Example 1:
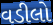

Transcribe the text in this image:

વડીલો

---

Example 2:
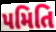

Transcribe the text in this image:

પમિતિ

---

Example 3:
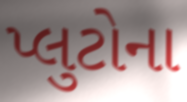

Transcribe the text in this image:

પ્લુટોના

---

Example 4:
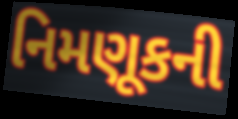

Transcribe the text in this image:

નિમણૂકની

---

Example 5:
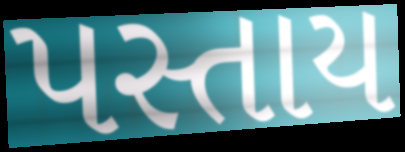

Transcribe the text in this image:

પસ્તાય